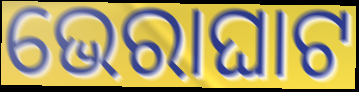
ଭେରାଘାଟ